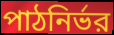
পাঠনির্ভর